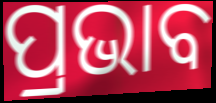
ପ୍ରଭାବ